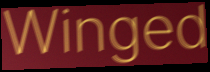
Winged